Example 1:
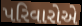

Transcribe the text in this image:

પરિવારોએ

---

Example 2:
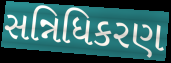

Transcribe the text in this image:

સન્નિધિકરણ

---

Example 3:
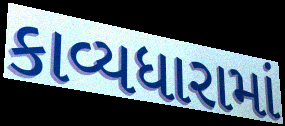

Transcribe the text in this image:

કાવ્યધારામાં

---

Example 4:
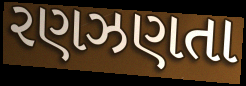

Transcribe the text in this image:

રણઝણતા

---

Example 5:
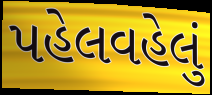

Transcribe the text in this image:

પહેલવહેલું